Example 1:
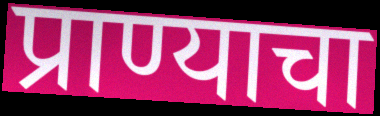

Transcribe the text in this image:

प्राण्याचा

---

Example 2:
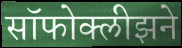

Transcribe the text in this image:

सॉफोक्लीझने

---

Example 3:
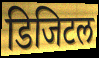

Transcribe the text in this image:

डिजिटल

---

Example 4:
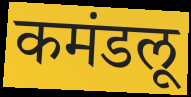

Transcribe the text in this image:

कमंडलू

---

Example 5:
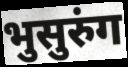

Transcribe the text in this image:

भुसुरुंग